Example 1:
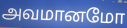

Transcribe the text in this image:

அவமானமோ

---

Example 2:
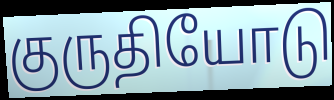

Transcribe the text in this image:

குருதியோடு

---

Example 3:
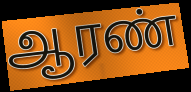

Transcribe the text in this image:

ஆரண்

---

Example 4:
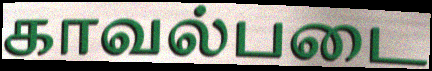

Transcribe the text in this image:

காவல்படை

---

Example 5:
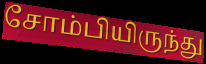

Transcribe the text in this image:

சோம்பியிருந்து